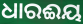
ଧାରଈୟ